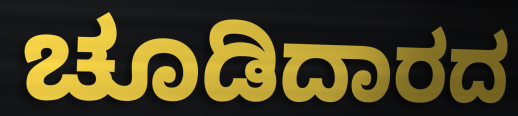
ಚೂಡಿದಾರದ